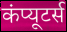
कंप्यूटर्स